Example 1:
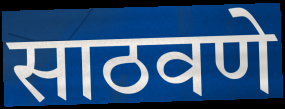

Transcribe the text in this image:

साठवणे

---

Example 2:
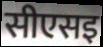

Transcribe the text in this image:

सीएसइ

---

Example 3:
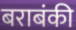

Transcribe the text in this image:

बराबंकी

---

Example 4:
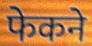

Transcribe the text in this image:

फेकने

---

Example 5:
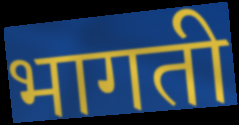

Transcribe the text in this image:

भागती